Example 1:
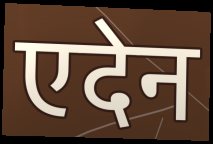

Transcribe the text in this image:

एदेन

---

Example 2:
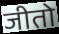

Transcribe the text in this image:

जीतो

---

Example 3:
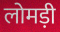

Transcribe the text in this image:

लोमड़ी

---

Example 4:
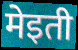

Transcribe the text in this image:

मेइती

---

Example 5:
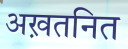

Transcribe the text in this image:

अख़तनित